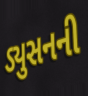
ડ્યુસનની